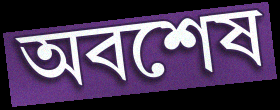
অবশেষ